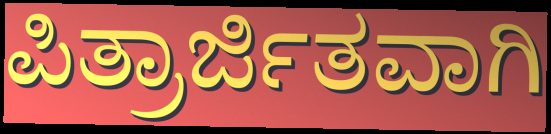
ಪಿತ್ರಾರ್ಜಿತವಾಗಿ